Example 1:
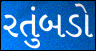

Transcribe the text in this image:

રતુંબડો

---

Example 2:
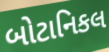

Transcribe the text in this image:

બોટાનિકલ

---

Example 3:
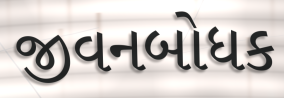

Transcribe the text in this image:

જીવનબોધક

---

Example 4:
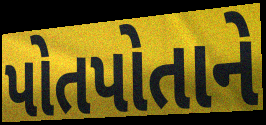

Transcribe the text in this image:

પોતપોતાને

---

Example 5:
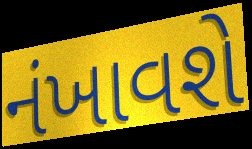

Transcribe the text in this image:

નંખાવશે